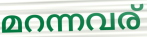
മറന്നവര്